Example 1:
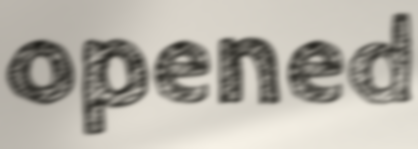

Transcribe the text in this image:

opened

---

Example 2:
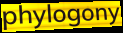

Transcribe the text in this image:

phylogony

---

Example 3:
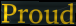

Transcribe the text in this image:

Proud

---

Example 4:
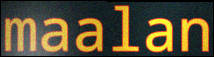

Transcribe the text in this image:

maalan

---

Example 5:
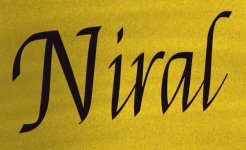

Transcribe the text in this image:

Niral